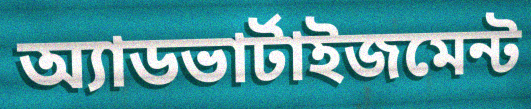
অ্যাডভার্টাইজমেন্ট